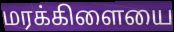
மரக்கிளையை